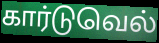
கார்டுவெல்